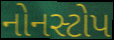
નોનસ્ટોપ